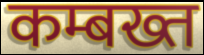
कम्बख्त